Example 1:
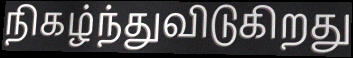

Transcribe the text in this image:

நிகழ்ந்துவிடுகிறது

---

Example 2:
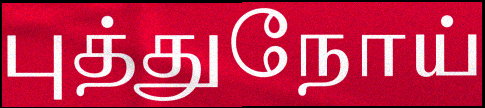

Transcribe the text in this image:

புத்துநோய்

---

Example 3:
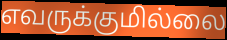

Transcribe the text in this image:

எவருக்குமில்லை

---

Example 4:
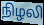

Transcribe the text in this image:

நிழலி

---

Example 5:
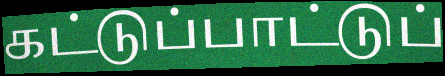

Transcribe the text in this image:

கட்டுப்பாட்டுப்